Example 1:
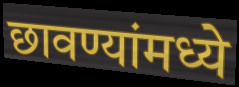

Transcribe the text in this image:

छावण्यांमध्ये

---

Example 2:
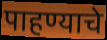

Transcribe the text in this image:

पाहण्याचे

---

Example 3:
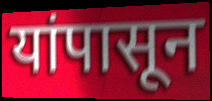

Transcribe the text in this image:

यांपासून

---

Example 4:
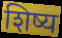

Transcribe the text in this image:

शिष्य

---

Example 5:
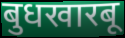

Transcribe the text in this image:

बुधखारबू